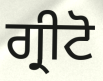
ਗ੍ਰੀਟੋ